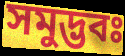
সমুদ্ভবঃ